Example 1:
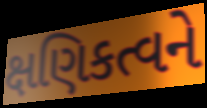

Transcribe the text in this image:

ક્ષણિકત્વને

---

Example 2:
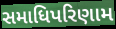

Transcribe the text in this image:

સમાધિપરિણામ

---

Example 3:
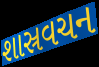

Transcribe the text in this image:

શાસ્રવચન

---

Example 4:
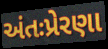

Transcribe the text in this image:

અંતઃપ્રેરણા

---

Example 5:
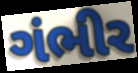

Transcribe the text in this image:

ગંભીર